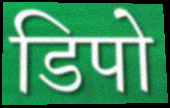
डिपो